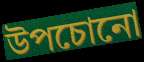
উপচোনো